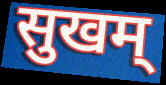
सुखम्